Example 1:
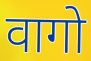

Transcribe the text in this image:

वागो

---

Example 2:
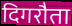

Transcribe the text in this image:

दिगरौता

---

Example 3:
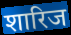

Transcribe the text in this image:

शारिज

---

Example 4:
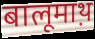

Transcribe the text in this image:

बालूमाथ़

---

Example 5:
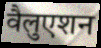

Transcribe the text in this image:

वैलुएशन